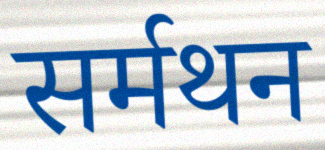
सर्मथन